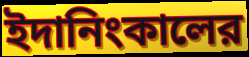
ইদানিংকালের